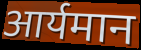
आर्यमान